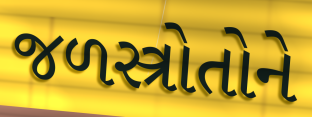
જળસ્ત્રોતોને